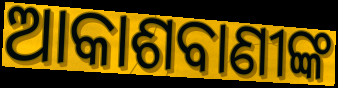
ଆକାଶବାଣୀଙ୍କ